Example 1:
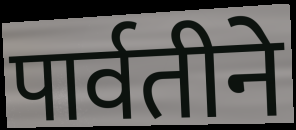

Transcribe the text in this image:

पार्वतीने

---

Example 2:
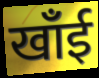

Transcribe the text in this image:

खाँई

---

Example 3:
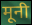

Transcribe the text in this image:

मूनी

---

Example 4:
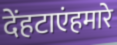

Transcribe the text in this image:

देंहटाएंहमारे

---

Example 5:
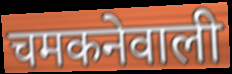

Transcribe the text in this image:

चमकनेवाली